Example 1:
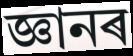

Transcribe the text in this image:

জ্ঞানৰ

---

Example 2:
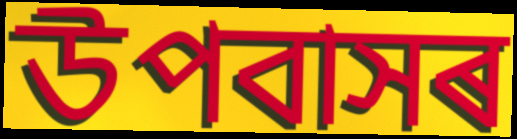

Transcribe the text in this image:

উপবাসৰ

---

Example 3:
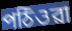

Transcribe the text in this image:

পঠিওৱা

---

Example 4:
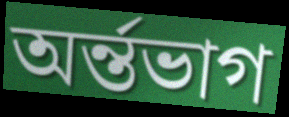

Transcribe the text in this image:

অৰ্ন্তভাগ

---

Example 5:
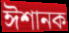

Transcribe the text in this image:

ঈশানক